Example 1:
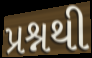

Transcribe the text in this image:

પ્રશ્નથી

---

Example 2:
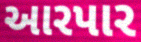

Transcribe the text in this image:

આરપાર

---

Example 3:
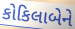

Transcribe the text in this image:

કોકિલાબેને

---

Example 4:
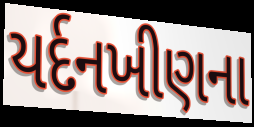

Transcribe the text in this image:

યર્દનખીણના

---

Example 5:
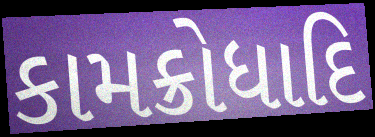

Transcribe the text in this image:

કામક્રોધાદિ